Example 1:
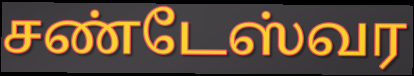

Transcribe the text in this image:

சண்டேஸ்வர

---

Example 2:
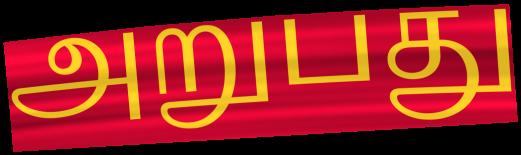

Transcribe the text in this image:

அறுபது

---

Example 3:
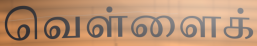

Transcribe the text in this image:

வெள்ளைக்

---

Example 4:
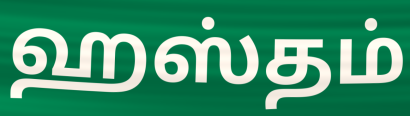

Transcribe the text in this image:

ஹஸ்தம்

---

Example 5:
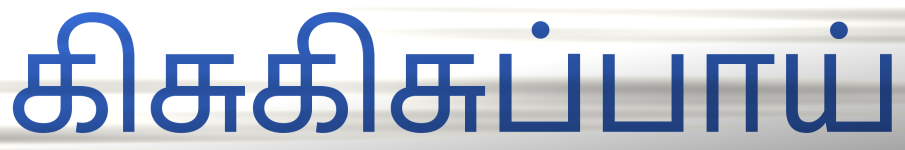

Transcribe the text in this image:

கிசுகிசுப்பாய்